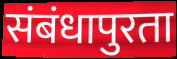
संबंधापुरता